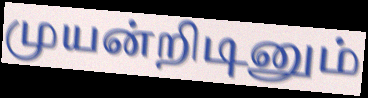
முயன்றிடினும்